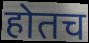
होतच